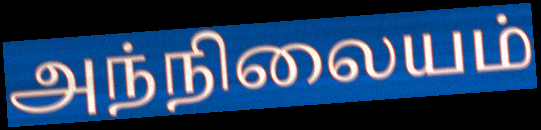
அந்நிலையம்